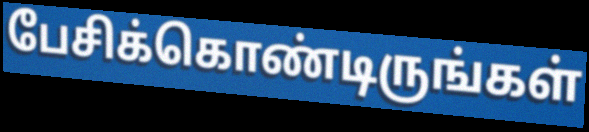
பேசிக்கொண்டிருங்கள்